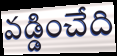
వడ్డించేది